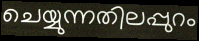
ചെയ്യുന്നതിലപ്പുറം